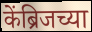
केंब्रिजच्या